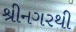
શ્રીનગરથી